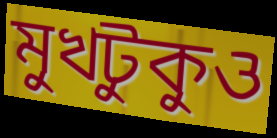
মুখটুকুও